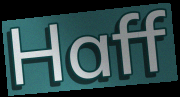
Haff